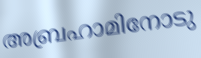
അബ്രഹാമിനോടു